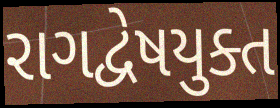
રાગદ્વેષયુક્ત